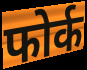
फोर्क